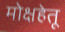
मोक्षहेतू